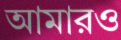
আমারও